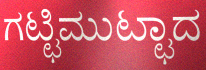
ಗಟ್ಟಿಮುಟ್ಟಾದ